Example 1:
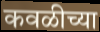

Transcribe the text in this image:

कवळीच्या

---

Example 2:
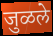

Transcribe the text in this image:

जुळले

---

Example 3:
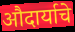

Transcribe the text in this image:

औदार्याचे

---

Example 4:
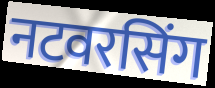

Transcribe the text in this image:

नटवरसिंग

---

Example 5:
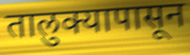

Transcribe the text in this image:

तालुक्यापासून